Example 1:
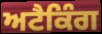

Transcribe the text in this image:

ਅਟੈਕਿੰਗ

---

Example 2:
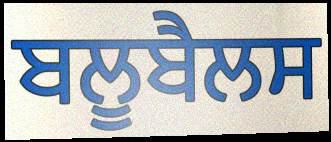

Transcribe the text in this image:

ਬਲੂਬੈਲਸ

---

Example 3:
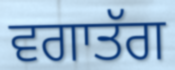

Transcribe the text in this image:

ਵਗਾਤੱਗ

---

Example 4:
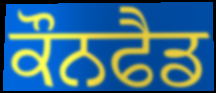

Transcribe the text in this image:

ਕੌਨਫੈਡ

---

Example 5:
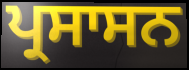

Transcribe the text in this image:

ਪ੍ਰਸਾਸਨ